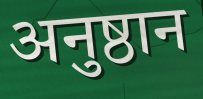
अनुष्ठान